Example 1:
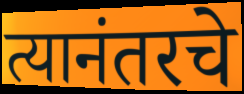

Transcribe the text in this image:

त्यानंतरचे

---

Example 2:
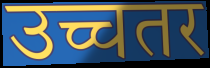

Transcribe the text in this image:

उच्चतर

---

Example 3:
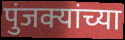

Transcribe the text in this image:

पुंजक्यांच्या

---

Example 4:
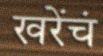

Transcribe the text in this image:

खरेंचं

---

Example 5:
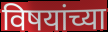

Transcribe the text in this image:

विषयांच्या